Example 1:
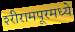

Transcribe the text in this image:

श्रीरामपूरमध्ये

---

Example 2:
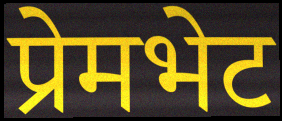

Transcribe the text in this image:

प्रेमभेट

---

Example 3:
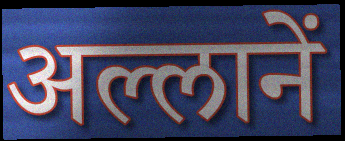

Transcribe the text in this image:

अल्लानें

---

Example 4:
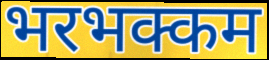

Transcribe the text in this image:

भरभक्कम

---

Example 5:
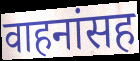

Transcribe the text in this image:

वाहनांसह